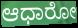
ಆಧಾರೋ